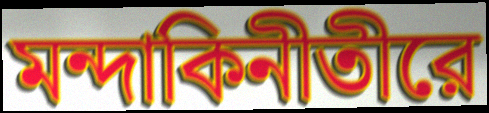
মন্দাকিনীতীরে